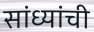
सांध्यांची